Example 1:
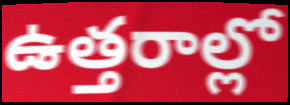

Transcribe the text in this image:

ఉత్తరాల్లో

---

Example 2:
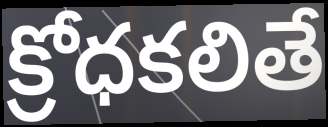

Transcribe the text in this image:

క్రోధకలితే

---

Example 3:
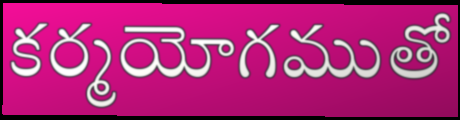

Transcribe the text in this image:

కర్మయోగముతో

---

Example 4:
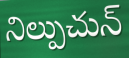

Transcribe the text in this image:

నిల్పుచున్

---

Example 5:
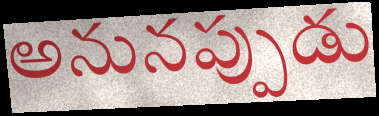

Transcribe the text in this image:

అనునప్పుడు